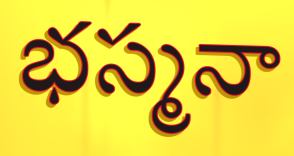
భస్మనా